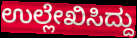
ಉಲ್ಲೇಖಿಸಿದ್ದು